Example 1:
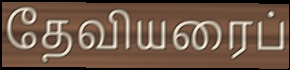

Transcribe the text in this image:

தேவியரைப்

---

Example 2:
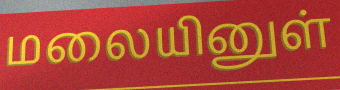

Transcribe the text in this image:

மலையினுள்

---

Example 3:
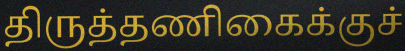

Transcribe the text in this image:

திருத்தணிகைக்குச்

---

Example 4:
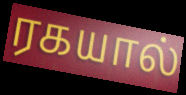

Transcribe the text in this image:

ரகயால்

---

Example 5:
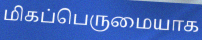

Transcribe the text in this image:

மிகப்பெருமையாக